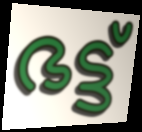
ഭട്ട്